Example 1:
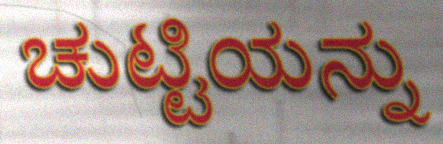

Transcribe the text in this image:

ಚುಟ್ಟಿಯನ್ನು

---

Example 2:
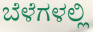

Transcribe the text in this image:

ಬೆಳೆಗಳಲ್ಲಿ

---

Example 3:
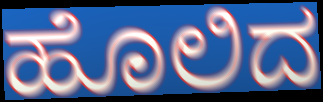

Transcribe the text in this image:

ಹೊಲಿದ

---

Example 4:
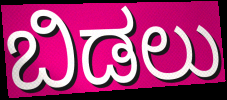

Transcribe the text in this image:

ಬಿಡಲು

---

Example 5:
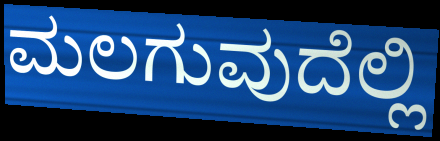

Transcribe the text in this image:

ಮಲಗುವುದೆಲ್ಲಿ